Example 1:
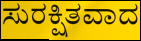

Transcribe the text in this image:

ಸುರಕ್ಷಿತವಾದ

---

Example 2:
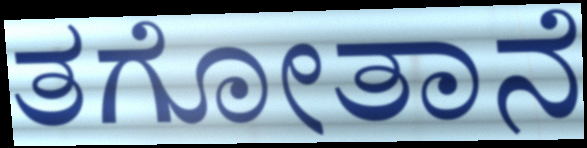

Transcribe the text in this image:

ತಗೋತಾನೆ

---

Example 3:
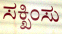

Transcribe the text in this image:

ಸಕ್ಖಿಂಸು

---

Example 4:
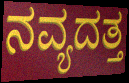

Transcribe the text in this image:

ನವ್ಯದತ್ತ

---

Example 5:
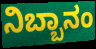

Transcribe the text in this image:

ನಿಬ್ಬಾನಂ